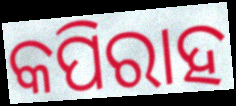
କପିରାହ